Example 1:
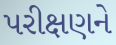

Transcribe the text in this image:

પરીક્ષણને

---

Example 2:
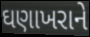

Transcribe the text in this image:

ઘણાખરાને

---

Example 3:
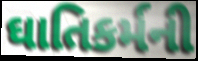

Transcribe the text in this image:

ઘાતિકર્મની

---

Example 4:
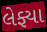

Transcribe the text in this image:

લેફ્યા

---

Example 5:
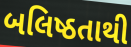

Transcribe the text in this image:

બલિષ્ઠતાથી